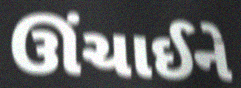
ઊંચાઈને